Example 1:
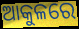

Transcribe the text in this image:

ଆକୁଳରେ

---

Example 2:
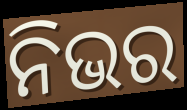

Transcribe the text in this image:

ନିଭର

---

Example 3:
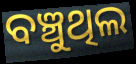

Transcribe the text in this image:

ବଞ୍ଚୁଥିଲ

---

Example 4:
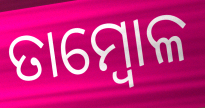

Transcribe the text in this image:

ତାମ୍ବୋଳ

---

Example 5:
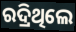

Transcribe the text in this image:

ରଦ୍ରିଥିଲେ